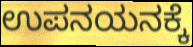
ಉಪನಯನಕ್ಕೆ